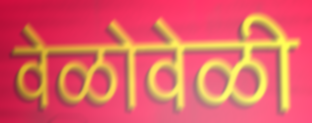
वेळोवेळी